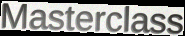
Masterclass